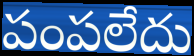
పంపలేదు